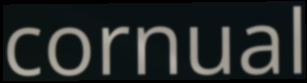
cornual